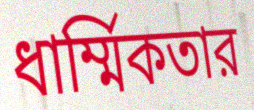
ধার্ম্মিকতার